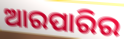
ଆରପାରିର